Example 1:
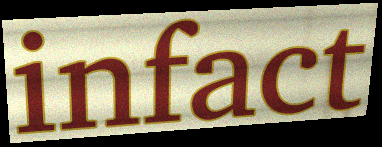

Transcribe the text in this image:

infact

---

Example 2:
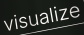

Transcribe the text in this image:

visualize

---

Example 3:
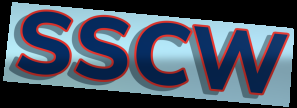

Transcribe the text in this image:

SSCW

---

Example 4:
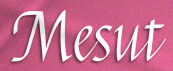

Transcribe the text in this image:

Mesut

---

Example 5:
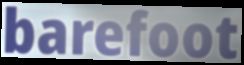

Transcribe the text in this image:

barefoot